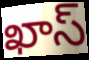
ఖాస్